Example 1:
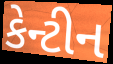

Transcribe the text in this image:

કેન્ટીન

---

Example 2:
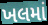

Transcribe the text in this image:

ખલમાં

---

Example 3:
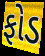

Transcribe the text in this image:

ફોડ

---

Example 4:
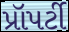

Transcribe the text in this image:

પ્રૉપર્ટી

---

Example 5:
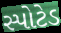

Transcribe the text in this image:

સ્પોટેડ